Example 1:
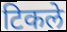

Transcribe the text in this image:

टिकले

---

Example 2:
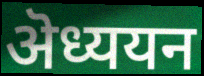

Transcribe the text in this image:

ऄध्ययन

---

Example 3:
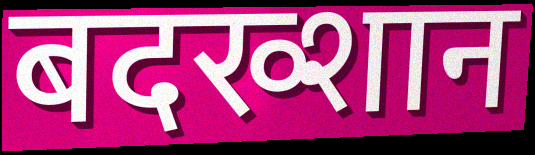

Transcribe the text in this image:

बदख्शान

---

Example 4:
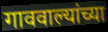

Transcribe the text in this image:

गाववाल्यांच्या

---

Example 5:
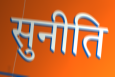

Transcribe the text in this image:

सुनीति